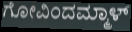
ಗೋವಿಂದಮ್ಮಾಳ್